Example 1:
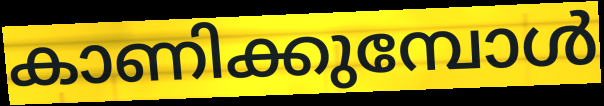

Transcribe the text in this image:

കാണിക്കുമ്പോൾ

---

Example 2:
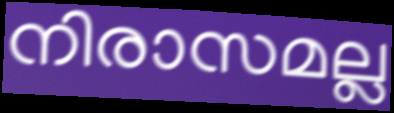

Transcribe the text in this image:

നിരാസമല്ല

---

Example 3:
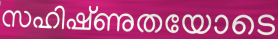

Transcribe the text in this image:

സഹിഷ്‌ണുതയോടെ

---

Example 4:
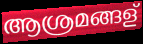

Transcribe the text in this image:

ആശ്രമങ്ങള്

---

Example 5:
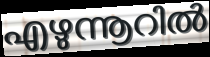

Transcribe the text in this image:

എഴുന്നൂറിൽ